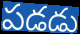
పడడు